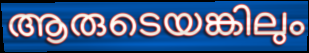
ആരുടെയങ്കിലും